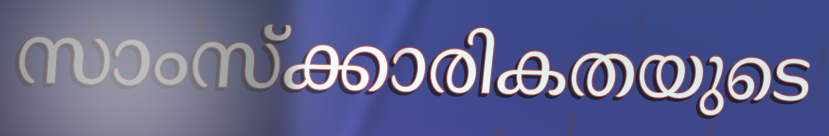
സാംസ്ക്കാരികതയുടെ